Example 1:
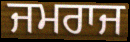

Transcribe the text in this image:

ਜਮਰਾਜ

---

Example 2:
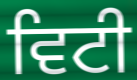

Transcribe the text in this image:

ਵਿਟੀ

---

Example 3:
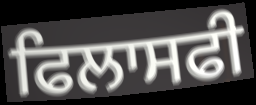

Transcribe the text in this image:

ਫਿਲਾਸਫੀ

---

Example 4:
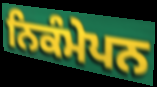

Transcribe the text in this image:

ਨਿਕੰਮੇਪਨ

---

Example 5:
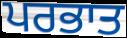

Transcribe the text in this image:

ਪਰਭਾਤ